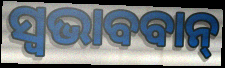
ସ୍ଵଭାବବାନ୍